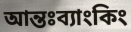
আন্তঃব্যাংকিং